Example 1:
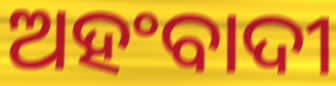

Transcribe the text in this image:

ଅହଂବାଦୀ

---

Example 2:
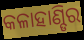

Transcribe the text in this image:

କଳାହାଣ୍ଡିର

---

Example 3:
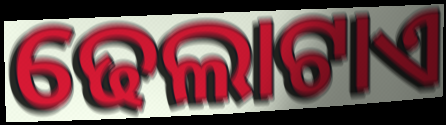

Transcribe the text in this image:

ଢେଲାଟାଏ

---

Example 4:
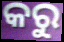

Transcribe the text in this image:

କରୁ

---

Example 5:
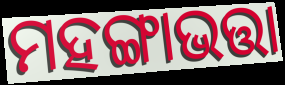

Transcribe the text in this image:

ମହଙ୍ଗାଭତ୍ତା